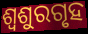
ଶ୍ୱଶୁରଗୃହ